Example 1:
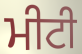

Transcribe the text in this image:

ਮੀਟੀ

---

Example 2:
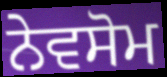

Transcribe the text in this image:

ਨੇਵਸੋਮ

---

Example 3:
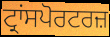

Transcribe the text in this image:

ਟ੍ਰਾਂਸਪੋਰਟਰਜ਼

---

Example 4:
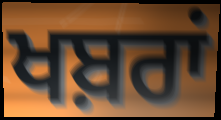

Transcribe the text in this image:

ਖਬ਼ਰਾਂ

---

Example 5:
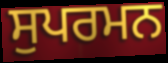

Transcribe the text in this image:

ਸੁਪਰਮਨ